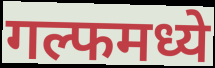
गल्फमध्ये